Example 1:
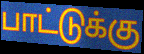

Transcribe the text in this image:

பாட்டுக்கு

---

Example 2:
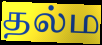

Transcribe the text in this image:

தல்ம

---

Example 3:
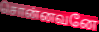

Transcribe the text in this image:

சொன்னவனே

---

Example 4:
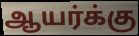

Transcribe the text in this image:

ஆயர்க்கு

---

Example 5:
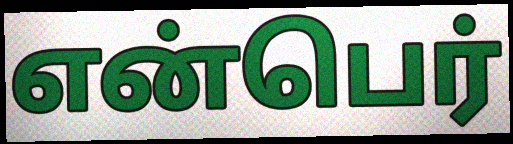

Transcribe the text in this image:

என்பெர்